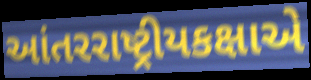
આંતરરાષ્ટ્રીયકક્ષાએ